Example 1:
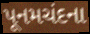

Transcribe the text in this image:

પૂનમચંદના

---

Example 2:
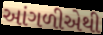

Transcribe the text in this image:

આંગળીએથી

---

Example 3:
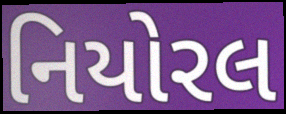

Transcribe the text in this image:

નિયોરલ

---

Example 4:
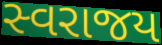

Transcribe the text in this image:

સ્વરાજય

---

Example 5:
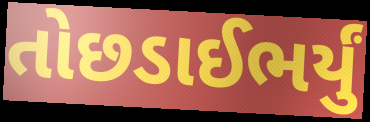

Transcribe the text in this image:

તોછડાઈભર્યું